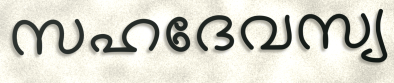
സഹദേവസ്യ